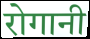
रोगानी